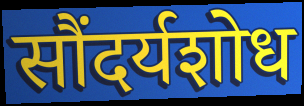
सौंदर्यशोध